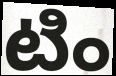
టిం